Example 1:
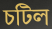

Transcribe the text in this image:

চটিল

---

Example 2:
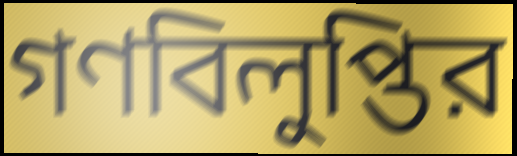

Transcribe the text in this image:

গণবিলুপ্তির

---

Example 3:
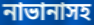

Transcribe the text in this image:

নাভানাসহ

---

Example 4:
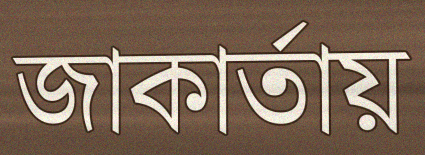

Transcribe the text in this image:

জাকার্তায়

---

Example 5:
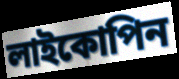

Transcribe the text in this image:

লাইকোপিন